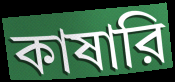
কাষারি